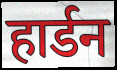
हार्डन